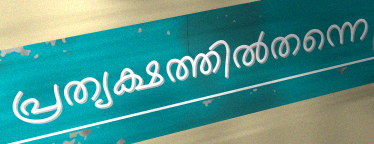
പ്രത്യക്ഷത്തിൽതന്നെ